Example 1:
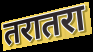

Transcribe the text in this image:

तरातरा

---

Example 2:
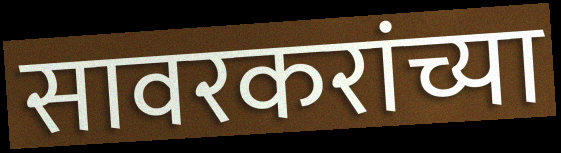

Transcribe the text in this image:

सावरकरांच्या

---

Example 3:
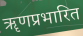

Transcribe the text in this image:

ॠणप्रभारित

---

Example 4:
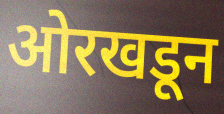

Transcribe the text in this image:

ओरखडून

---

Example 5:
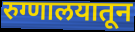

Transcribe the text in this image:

रुग्णालयातून